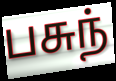
பசுந்